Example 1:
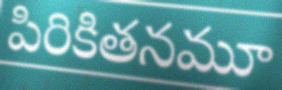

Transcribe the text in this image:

పిరికితనమూ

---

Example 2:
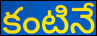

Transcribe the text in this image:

కంటినే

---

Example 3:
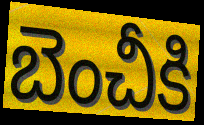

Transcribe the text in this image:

బెంచీకి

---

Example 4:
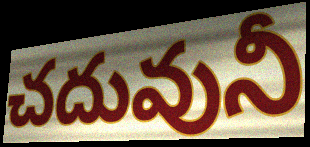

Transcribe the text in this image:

చదువునీ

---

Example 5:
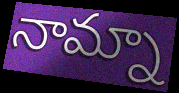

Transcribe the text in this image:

నామ్నా